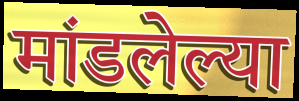
मांडलेल्या